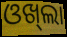
ଓଖ୍‌ଲା